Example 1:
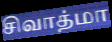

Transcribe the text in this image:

சிவாத்மா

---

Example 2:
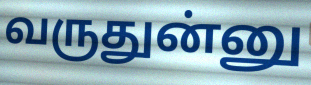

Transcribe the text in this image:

வருதுன்னு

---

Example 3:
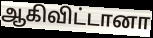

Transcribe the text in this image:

ஆகிவிட்டானா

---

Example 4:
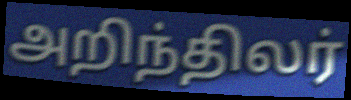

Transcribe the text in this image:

அறிந்திலர்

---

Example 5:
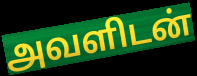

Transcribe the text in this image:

அவளிடன்